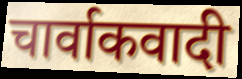
चार्वाकवादी